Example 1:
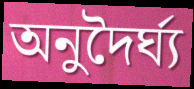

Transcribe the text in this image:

অনুদৈর্ঘ্য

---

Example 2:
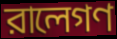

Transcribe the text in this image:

রালেগণ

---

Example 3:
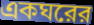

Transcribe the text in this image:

একঘরের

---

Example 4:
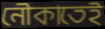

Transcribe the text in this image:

নৌকাতেই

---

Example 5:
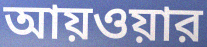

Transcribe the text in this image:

আয়ওয়ার